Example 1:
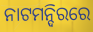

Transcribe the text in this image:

ନାଟମନ୍ଦିରରେ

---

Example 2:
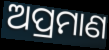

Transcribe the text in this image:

ଅପ୍ରମାଣ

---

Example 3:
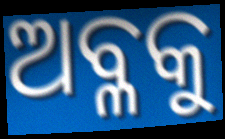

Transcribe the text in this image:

ଅବ୍ଳକୁ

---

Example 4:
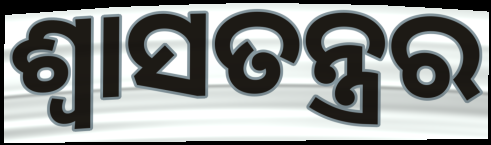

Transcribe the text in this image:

ଶ୍ଵାସତନ୍ତ୍ରର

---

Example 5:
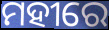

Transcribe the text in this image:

ମହୀରେ